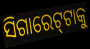
ସିଗାରେଟ୍‍ଟାକୁ